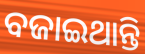
ବଜାଇଥାନ୍ତି